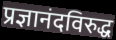
प्रज्ञानंदविरुद्ध